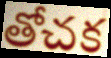
తోచక